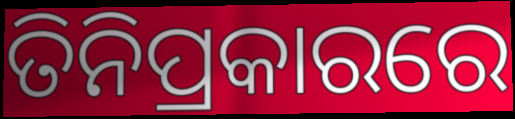
ତିନିପ୍ରକାରରେ